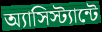
অ্যাসিস্ট্যান্টে